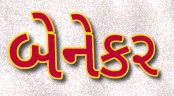
બેનેકર